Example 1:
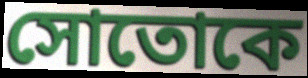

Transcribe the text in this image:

সোতোকে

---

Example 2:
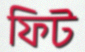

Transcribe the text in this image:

ফিট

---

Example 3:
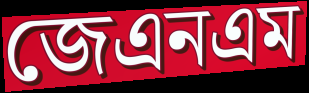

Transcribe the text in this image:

জেএনএম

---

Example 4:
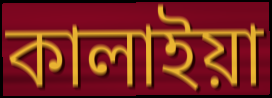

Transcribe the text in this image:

কালাইয়া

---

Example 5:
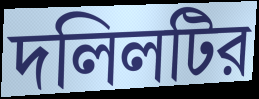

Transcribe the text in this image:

দলিলটির